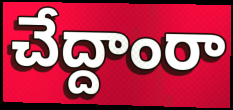
చేద్దాంరా